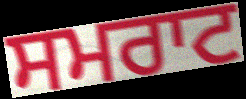
ਸਮਰਾਟ